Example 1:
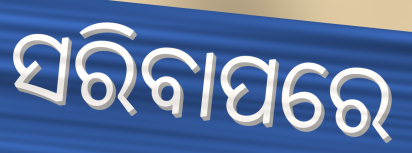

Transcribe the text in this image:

ସରିବାପରେ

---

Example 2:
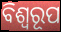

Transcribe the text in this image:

ବିଶ୍ୱରୂପ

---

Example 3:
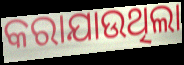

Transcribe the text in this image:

କରାଯାଉଥିଲା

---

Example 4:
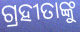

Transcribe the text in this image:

ଗ୍ରହୀତାଙ୍କୁ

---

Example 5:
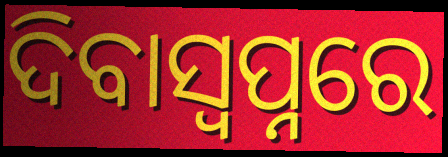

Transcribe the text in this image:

ଦିବାସ୍ବପ୍ନରେ